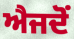
ਐਜਦੋਂ